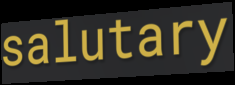
salutary